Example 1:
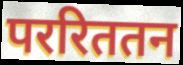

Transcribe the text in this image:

पररिततन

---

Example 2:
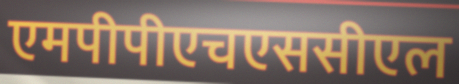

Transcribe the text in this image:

एमपीपीएचएससीएल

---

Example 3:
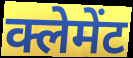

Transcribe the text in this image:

क्लेमेंट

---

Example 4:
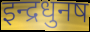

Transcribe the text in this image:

इन्द्रधुनष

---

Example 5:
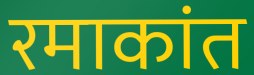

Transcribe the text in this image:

रमाकांत